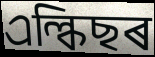
এল্কিছৰ